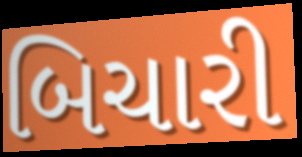
બિચારી